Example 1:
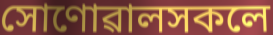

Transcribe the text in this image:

সোণোৱালসকলে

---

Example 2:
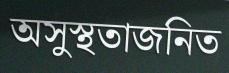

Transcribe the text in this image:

অসুস্থতাজনিত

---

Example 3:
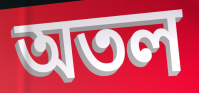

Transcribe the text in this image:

অতল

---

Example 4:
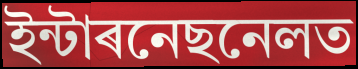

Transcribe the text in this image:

ইন্টাৰনেছনেলত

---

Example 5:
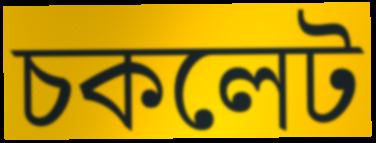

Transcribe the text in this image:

চকলেট